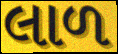
લાળ